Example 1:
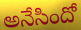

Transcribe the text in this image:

అనేసిందో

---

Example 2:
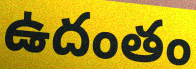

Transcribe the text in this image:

ఉదంతం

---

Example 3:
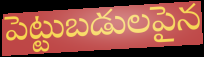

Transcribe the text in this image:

పెట్టుబడులపైన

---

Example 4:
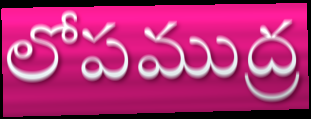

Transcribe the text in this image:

లోపముద్ర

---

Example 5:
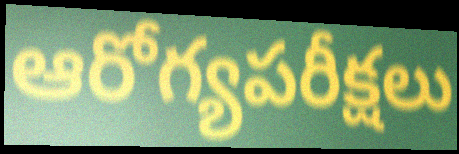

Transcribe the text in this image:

ఆరోగ్యపరీక్షలు